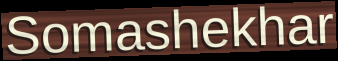
Somashekhar